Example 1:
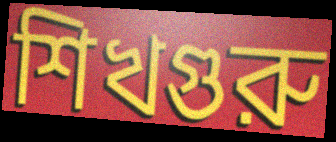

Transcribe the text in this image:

শিখগুরু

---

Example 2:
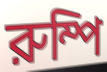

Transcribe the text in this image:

রুম্পি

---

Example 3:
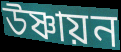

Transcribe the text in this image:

উষ্ণায়ন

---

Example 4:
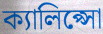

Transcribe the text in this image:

ক্যালিপ্সো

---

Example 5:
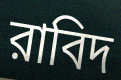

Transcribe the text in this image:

রাবিদ